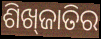
ଶିଖ୍‌ଜାତିର